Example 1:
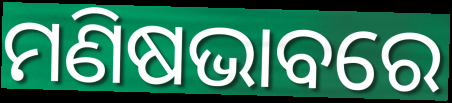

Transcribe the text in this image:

ମଣିଷଭାବରେ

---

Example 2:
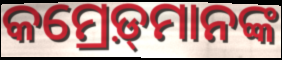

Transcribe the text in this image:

କମ୍ରେଡ଼୍‍ମାନଙ୍କ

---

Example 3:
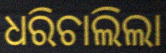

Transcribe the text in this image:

ଧରିଚାଲିଲା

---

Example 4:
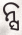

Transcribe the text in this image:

ନ୍ସ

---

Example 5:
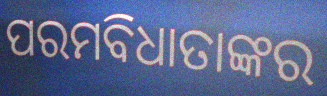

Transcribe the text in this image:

ପରମବିଧାତାଙ୍କର